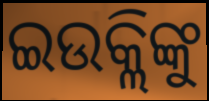
ଇଉକ୍ଲିଙ୍କୁ